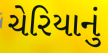
ચેરિયાનું